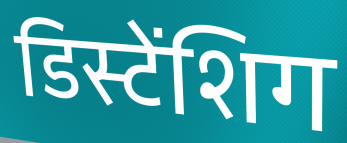
डिस्टेंशिग